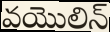
వయొలిన్